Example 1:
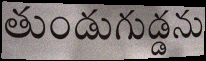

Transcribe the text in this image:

తుండుగుడ్డను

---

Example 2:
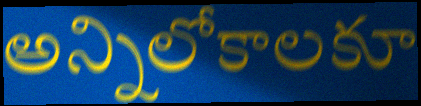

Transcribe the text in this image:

అన్నిలోకాలకూ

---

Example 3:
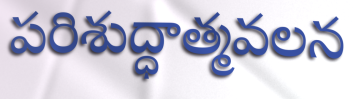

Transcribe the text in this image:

పరిశుద్ధాత్మవలన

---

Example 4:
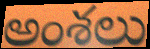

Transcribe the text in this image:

అంశలు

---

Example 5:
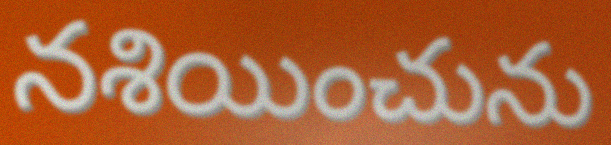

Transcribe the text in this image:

నశియించును